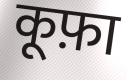
कूफ़ा